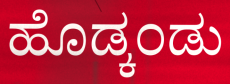
ಹೊಡ್ಕಂಡು